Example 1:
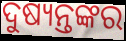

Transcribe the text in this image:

ଦୁଷ୍ୟନ୍ତଙ୍କର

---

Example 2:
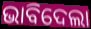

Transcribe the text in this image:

ଭାବିଦେଲା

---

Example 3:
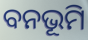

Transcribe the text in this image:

ବନଭୂମି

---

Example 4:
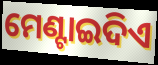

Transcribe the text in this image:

ମେଣ୍ଟାଇଦିଏ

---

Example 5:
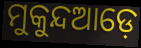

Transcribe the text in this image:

ମୁକୁନ୍ଦଆଡ଼େ